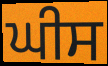
ਘੀਸ